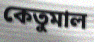
কেতুমাল